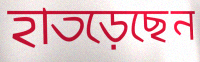
হাতড়েছেন